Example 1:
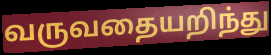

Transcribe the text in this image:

வருவதையறிந்து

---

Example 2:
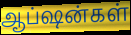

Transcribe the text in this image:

ஆப்ஷன்கள்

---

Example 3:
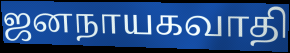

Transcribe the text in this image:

ஜனநாயகவாதி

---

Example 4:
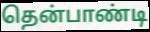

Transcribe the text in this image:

தென்பாண்டி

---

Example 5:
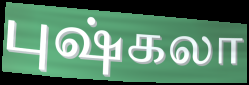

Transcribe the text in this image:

புஷ்கலா